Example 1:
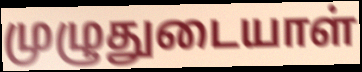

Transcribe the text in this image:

முழுதுடையாள்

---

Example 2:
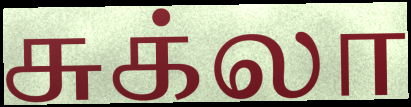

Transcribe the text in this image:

சுக்லா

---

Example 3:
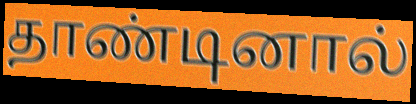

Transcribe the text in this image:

தாண்டினால்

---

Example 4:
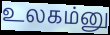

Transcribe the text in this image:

உலகம்னு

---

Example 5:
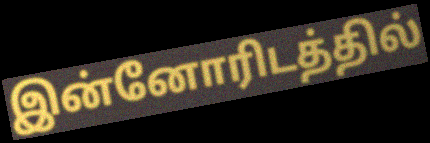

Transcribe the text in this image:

இன்னோரிடத்தில்